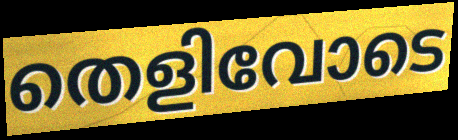
തെളിവോടെ